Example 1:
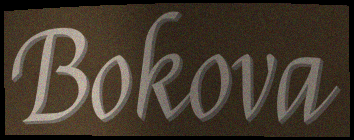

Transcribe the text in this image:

Bokova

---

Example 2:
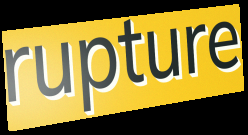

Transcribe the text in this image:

rupture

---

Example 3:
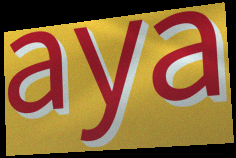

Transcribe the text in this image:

aya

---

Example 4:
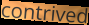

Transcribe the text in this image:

contrived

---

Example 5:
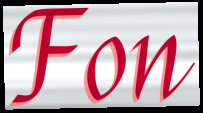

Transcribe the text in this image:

Fon